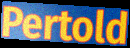
Pertold